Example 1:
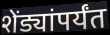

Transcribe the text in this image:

शेंड्यांपर्यंत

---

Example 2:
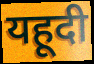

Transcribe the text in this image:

यहूदी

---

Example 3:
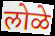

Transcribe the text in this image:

लोळे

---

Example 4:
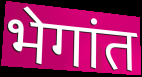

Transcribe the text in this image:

भेगांत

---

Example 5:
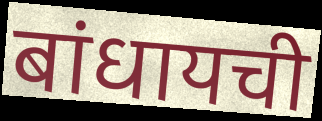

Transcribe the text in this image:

बांधायची